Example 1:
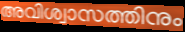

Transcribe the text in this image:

അവിശ്വാസത്തിനും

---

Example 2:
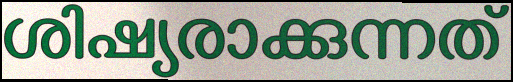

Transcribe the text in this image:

ശിഷ്യരാക്കുന്നത്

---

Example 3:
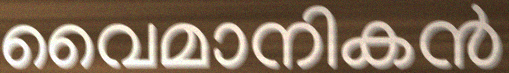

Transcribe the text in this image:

വൈമാനികൻ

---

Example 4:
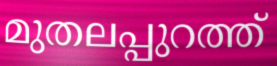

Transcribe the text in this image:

മുതലപ്പുറത്ത്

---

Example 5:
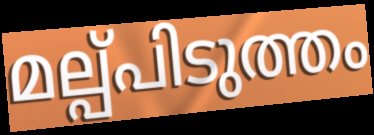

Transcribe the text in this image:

മല്പ്പിടുത്തം